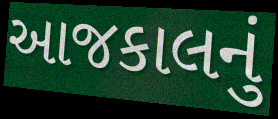
આજકાલનું